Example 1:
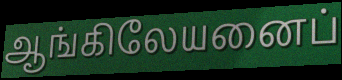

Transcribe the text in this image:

ஆங்கிலேயனைப்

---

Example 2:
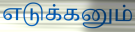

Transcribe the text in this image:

எடுக்கனும்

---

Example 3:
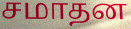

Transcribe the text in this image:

சமாதன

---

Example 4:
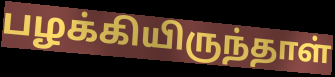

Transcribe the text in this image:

பழக்கியிருந்தாள்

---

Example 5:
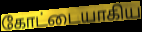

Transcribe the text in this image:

கோட்டையாகிய